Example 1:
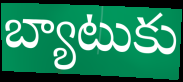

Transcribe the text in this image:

బ్యాటుకు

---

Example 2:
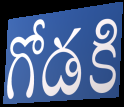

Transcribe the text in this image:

గోడకి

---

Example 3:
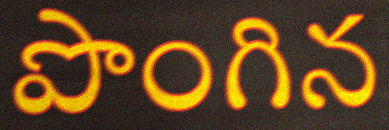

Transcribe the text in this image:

పొంగిన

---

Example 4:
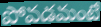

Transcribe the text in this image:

పోవడమంటే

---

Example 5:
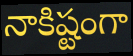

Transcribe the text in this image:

నాకిష్టంగా